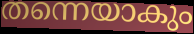
തന്നെയാകും